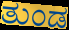
ತುಂಡ